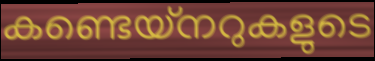
കണ്ടെയ്നറുകളുടെ